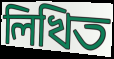
লিখিত